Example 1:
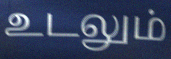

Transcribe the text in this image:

உடலும்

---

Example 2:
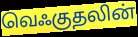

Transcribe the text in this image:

வெஃகுதலின்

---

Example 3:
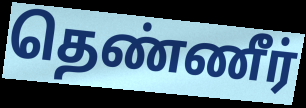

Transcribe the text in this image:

தெண்ணீர்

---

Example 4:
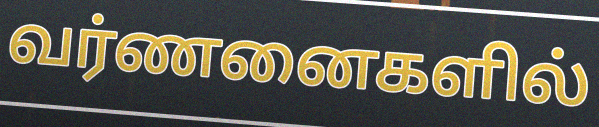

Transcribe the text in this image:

வர்ணனைகளில்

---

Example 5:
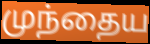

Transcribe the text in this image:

முந்தைய